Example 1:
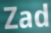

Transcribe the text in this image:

Zad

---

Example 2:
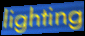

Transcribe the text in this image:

lighting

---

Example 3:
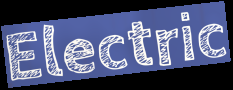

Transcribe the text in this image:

Electric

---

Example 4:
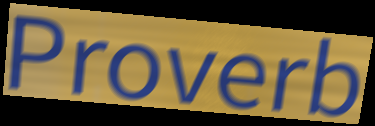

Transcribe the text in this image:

Proverb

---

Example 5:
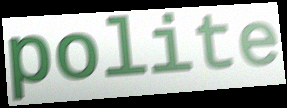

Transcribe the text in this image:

polite